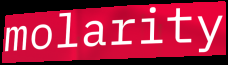
molarity